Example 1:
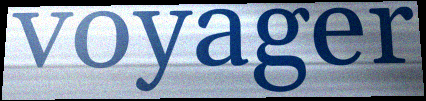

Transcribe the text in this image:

voyager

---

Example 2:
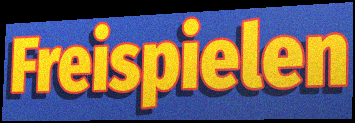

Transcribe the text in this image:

Freispielen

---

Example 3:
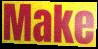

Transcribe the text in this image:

Make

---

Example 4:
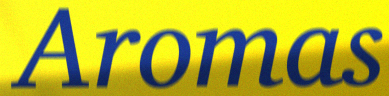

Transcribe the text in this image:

Aromas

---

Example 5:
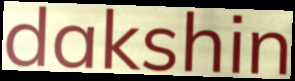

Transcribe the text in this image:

dakshin